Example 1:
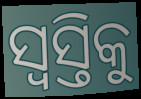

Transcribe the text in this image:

ସ୍ୱସ୍ତିକୁ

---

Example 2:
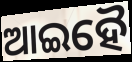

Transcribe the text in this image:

ଆଇହୈ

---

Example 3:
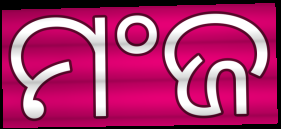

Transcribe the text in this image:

ମଂଜ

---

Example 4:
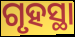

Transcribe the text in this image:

ଗୃହସ୍ଥା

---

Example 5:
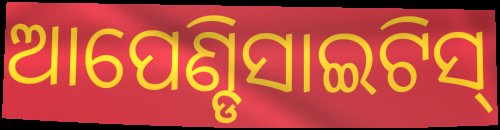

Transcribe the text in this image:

ଆପେଣ୍ଡିସାଇଟିସ୍